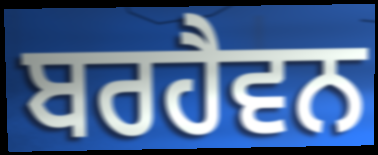
ਬਰਹੈਵਨ